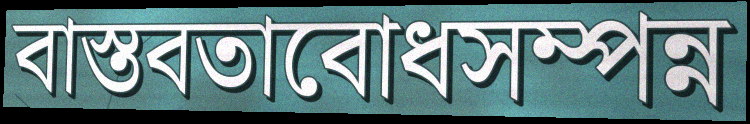
বাস্তবতাবোধসম্পন্ন